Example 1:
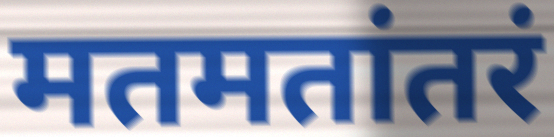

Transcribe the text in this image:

मतमतांतरं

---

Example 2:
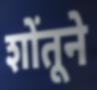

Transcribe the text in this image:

शोंतूने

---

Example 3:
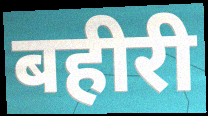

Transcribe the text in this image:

बहीरी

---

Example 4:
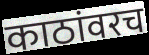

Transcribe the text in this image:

काठांवरच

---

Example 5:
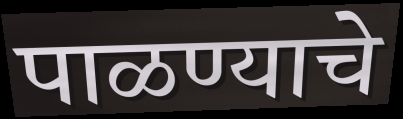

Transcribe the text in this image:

पाळण्याचे